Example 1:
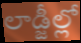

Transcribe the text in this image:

లాడ్జీల్లో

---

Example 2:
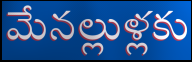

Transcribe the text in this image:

మేనల్లుళ్లకు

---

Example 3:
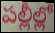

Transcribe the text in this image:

పల్లీల్లో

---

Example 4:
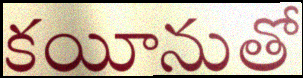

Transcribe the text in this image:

కయీనుతో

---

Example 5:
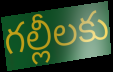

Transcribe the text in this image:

గల్లీలకు